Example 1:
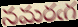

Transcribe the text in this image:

నమరఁగ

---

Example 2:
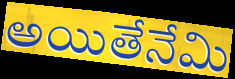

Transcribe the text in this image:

అయితేనేమి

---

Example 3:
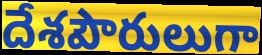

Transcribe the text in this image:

దేశపౌరులుగా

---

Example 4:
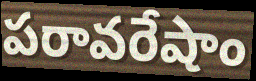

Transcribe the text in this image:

పరావరేషాం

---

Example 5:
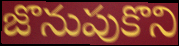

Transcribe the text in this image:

జొనుపుకొని